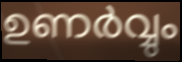
ഉണർവ്വും